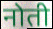
नोती